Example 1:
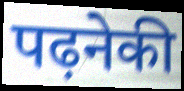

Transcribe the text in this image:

पढ़नेकी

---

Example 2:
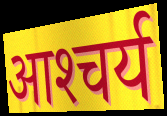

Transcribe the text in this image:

आश्‍चर्य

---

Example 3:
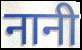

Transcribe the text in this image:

नानी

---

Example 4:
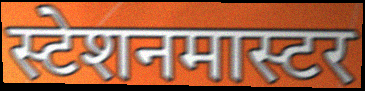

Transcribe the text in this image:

स्टेशनमास्टर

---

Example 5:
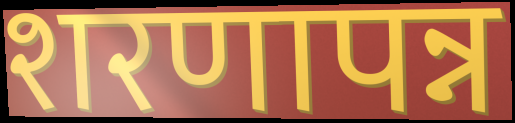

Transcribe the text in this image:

शरणापन्न